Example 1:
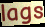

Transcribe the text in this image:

lags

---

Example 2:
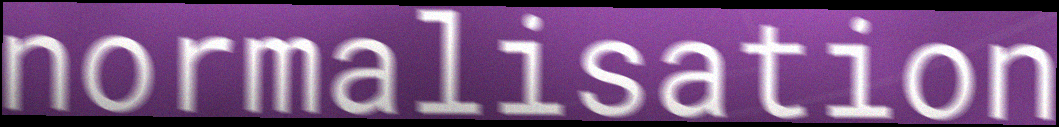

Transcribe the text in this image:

normalisation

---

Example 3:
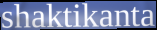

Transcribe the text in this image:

shaktikanta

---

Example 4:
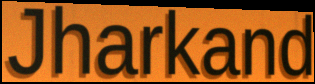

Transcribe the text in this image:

Jharkand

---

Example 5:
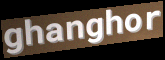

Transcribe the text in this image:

ghanghor